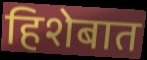
हिशेबात